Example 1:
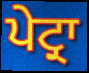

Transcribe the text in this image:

ਪੇਟ੍ਰਾ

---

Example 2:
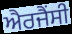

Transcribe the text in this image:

ਐਰਜੈਂਸੀ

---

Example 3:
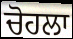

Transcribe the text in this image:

ਚੋਹਲਾ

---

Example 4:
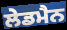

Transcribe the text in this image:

ਲੇਡਮੈਨ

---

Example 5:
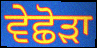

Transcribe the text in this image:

ਵੇਛੋੜਾ